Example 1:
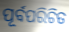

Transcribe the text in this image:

ପୂର୍ବପରିଚିତ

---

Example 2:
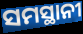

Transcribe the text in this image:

ସମସ୍ଥାନୀ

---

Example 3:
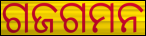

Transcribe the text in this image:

ଗଜଗମନ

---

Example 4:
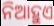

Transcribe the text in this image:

ନିଆହୁଏ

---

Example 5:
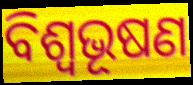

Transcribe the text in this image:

ବିଶ୍ବଭୂଷଣ